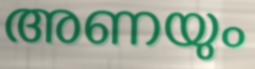
അണയും